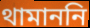
থামাননি